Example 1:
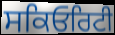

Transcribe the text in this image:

ਸਕਿਓਰਿਟੀ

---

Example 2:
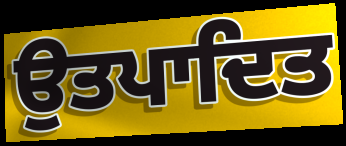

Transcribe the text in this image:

ਉਤਪਾਦਿਤ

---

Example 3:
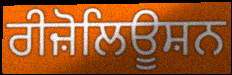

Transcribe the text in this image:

ਰੀਜ਼ੋਲਿਊਸ਼ਨ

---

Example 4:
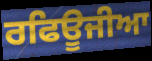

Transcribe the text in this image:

ਰਫਿਊਜੀਆ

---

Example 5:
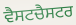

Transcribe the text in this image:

ਵੈਸਟਚੈਸਟਰ